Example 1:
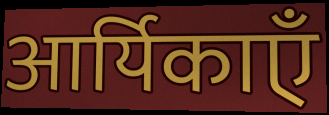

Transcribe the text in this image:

आर्यिकाएँ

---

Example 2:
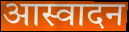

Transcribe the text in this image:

आस्वादन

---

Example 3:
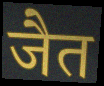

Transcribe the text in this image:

जैत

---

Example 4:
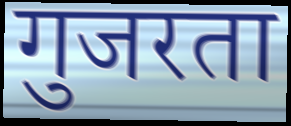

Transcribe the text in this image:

गुजरता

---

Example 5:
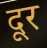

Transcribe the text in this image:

दूर